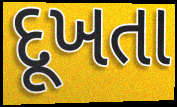
દૂખતા